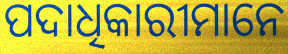
ପଦାଧିକାରୀମାନେ